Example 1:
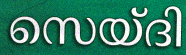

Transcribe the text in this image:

സെയ്ദി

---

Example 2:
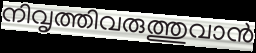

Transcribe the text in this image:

നിവൃത്തിവരുത്തുവാൻ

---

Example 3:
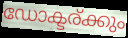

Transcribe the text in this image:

ഡോക്ടര്ക്കും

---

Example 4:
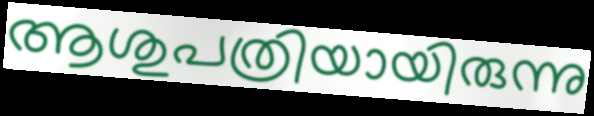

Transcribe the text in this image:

ആശുപത്രിയായിരുന്നു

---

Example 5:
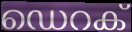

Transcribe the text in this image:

ഡെറക്